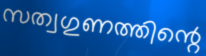
സത്വഗുണത്തിന്റെ